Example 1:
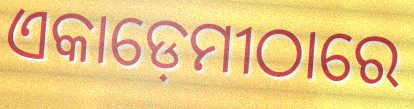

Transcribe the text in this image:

ଏକାଡ଼େମୀଠାରେ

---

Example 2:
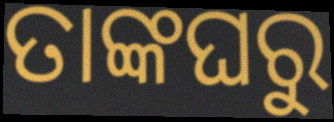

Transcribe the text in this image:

ତାଙ୍କଘରୁ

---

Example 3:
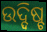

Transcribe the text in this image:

ଉଦ୍ଦିଷ୍ଚ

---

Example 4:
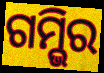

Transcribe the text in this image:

ଗମ୍ଭିର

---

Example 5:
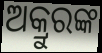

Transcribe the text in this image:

ଅକ୍ରୁରଙ୍କ